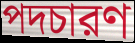
পদচারণ